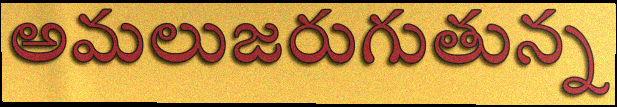
అమలుజరుగుతున్న